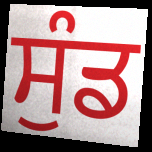
ਸੁੰਡ